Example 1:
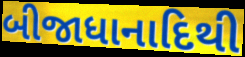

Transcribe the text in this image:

બીજાધાનાદિથી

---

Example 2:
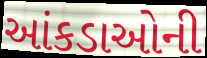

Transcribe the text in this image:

આંકડાઓની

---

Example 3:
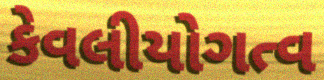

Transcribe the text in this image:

કેવલીયોગત્વ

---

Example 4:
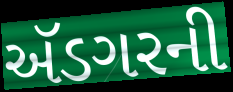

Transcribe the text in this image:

ઍડગરની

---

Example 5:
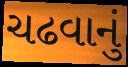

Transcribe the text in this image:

ચઢવાનું